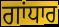
ਗਾਂਧਾਰ